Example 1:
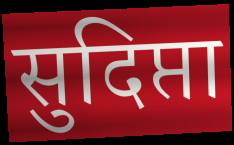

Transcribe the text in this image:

सुदिप्ता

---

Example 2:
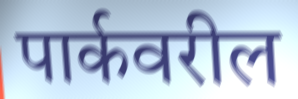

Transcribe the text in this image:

पार्कवरील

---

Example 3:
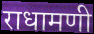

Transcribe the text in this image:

राधामणी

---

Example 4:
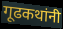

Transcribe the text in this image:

गूढकथांनी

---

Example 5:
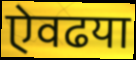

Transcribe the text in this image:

ऐवढया